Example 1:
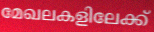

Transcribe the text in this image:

മേഖലകളിലേക്ക്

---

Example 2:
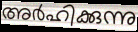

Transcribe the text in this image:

അർഹിക്കുന്നു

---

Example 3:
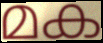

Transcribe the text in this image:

മക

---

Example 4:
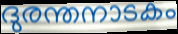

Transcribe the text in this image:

ദുരന്തനാടകം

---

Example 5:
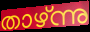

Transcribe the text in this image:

താഴ്ന്നു